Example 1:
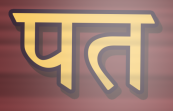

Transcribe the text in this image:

पत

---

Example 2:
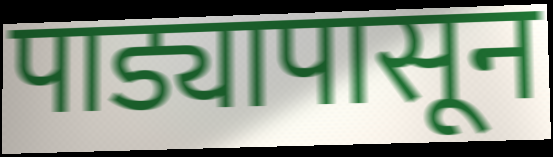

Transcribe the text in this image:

पाड्यापासून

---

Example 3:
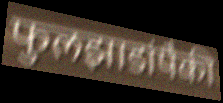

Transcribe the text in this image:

फुलझाडांपैकी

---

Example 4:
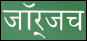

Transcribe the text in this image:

जॉर्जच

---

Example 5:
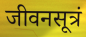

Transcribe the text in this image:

जीवनसूत्रं